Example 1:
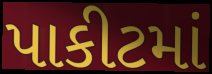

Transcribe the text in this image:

પાકીટમાં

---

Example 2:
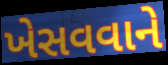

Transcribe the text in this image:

ખેસવવાને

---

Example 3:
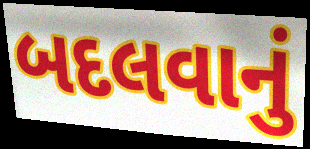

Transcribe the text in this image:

બદલવાનું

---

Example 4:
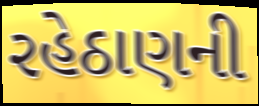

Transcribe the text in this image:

રહેઠાણની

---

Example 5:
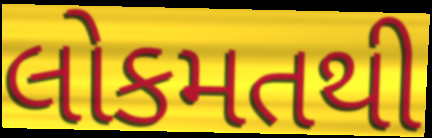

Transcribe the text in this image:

લોકમતથી